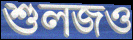
শুলজও